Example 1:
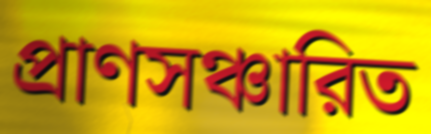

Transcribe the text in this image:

প্রাণসঞ্চারিত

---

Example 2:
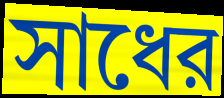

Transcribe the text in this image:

সাধের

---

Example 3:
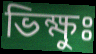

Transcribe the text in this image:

ভিক্ষুঃ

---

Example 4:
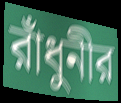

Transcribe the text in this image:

রাঁধুনীর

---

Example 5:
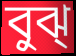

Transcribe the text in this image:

বুঝ্